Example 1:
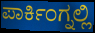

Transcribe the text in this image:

ಪಾರ್ಕಿಂಗ್ನಲ್ಲಿ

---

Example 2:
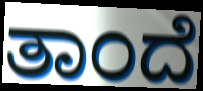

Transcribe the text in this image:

ತಾಂದೆ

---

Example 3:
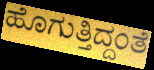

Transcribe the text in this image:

ಹೊಗುತ್ತಿದ್ದಂತೆ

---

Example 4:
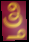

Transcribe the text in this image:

ತ್ತಿ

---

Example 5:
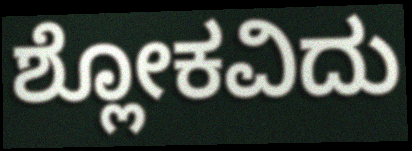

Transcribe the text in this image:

ಶ್ಲೋಕವಿದು